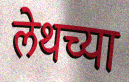
लेथच्या